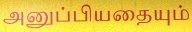
அனுப்பியதையும்